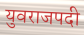
युवराजपदी